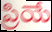
ప్రియే